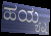
ಹಯ್ಯ್ನ